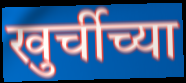
खुर्चीच्या